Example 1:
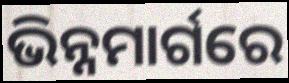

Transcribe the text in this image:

ଭିନ୍ନମାର୍ଗରେ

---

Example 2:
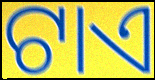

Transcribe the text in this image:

ଟାଏ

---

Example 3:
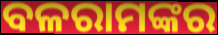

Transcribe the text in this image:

ବଳରାମଙ୍କର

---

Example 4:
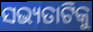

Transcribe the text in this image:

ସଭ୍ୟତାଟିକୁ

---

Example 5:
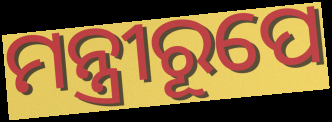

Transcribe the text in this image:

ମନ୍ତ୍ରୀରୂପେ